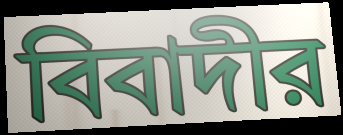
বিবাদীর